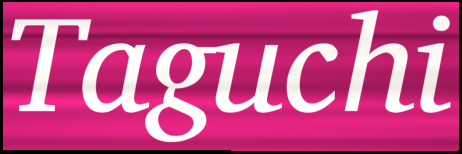
Taguchi